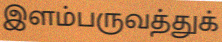
இளம்பருவத்துக்